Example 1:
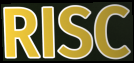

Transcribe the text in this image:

RISC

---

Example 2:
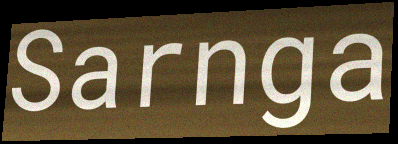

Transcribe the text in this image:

Sarnga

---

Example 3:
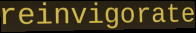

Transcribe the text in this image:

reinvigorate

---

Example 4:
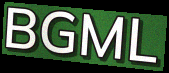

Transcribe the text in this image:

BGML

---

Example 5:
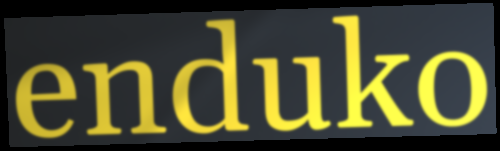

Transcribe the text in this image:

enduko